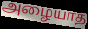
அழையாத